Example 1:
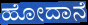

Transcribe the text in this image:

ಹೋದಾನೆ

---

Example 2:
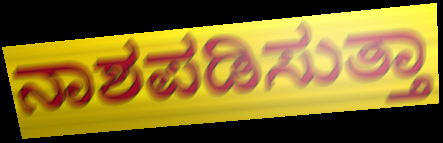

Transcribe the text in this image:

ನಾಶಪಡಿಸುತ್ತಾ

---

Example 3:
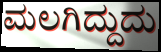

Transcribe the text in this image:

ಮಲಗಿದ್ದುದು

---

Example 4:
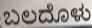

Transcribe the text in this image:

ಬಲದೊಳು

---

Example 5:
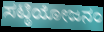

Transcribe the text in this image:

ಸಟ್ಠಿಯೋಜನಂ